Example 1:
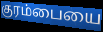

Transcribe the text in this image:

குரம்பையை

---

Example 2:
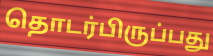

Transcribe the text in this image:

தொடர்பிருப்பது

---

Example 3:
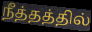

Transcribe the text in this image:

நீத்தத்தில்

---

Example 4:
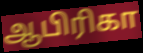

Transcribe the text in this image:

ஆபிரிகா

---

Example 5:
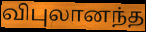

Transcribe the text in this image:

விபுலானந்த